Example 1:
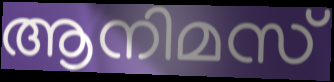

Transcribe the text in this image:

ആനിമസ്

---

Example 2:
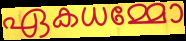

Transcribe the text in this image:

ഏകധമ്മോ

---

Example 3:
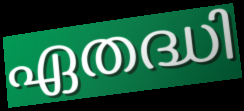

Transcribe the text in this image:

ഏതദ്ധി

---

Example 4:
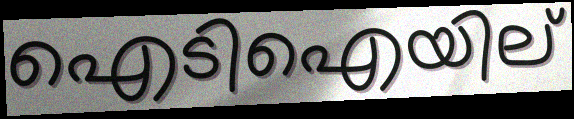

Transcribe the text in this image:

ഐടിഐയില്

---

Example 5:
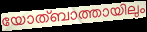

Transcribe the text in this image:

യോത്ബാത്തായിലും